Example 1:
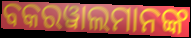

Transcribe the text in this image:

ବକରୱାଲମାନଙ୍କ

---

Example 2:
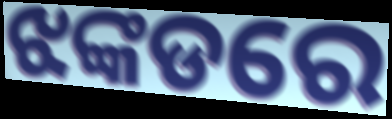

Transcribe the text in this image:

ଝଙ୍କଡରେ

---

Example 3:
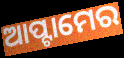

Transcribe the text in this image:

ଆପ୍ଟାମେର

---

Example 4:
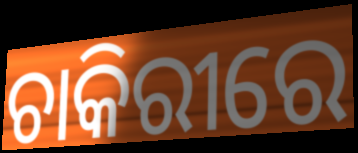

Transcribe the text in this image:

ଚାକିରୀରେ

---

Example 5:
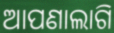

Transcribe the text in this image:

ଆପଣାଲାଗି